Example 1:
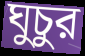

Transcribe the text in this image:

ঘুচুর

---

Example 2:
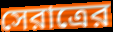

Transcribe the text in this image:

সেরাত্রের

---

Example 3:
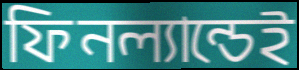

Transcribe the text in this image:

ফিনল্যান্ডেই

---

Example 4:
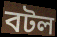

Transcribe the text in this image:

বটল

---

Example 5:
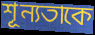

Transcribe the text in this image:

শূন্যতাকে